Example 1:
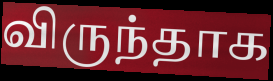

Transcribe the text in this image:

விருந்தாக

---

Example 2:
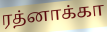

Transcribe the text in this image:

ரத்னாக்கா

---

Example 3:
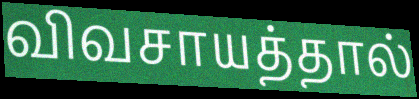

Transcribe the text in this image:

விவசாயத்தால்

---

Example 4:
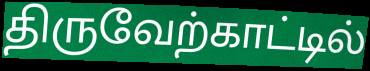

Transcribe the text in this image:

திருவேற்காட்டில்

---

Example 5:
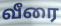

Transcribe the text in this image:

வீரை